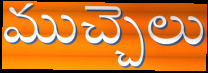
ముచ్చెలు